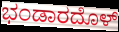
ಭಂಡಾರದೊಳ್